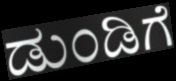
ಡುಂಡಿಗೆ